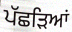
ਪੱਛੜਿਆਂ